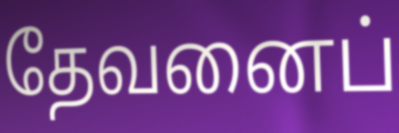
தேவனைப்